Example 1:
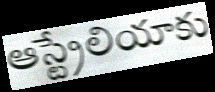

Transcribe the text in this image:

ఆస్ట్రేలియాకు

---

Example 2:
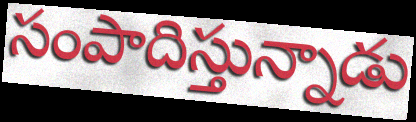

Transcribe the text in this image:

సంపాదిస్తున్నాడు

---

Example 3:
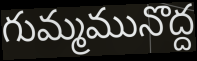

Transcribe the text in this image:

గుమ్మమునొద్ద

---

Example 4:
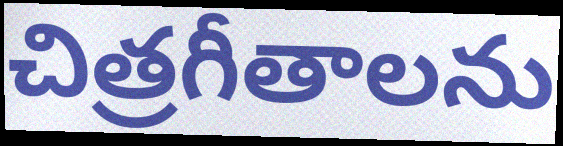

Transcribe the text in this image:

చిత్రగీతాలను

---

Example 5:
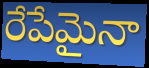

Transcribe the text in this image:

రేపేమైనా